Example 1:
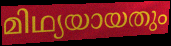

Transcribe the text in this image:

മിഥ്യയായതും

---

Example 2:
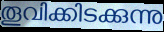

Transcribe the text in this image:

തൂവിക്കിടക്കുന്നു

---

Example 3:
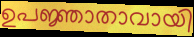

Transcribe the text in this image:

ഉപജ്ഞാതാവായി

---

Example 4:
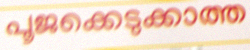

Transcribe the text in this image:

പൂജക്കെടുക്കാത്ത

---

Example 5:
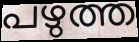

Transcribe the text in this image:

പഴുത്ത